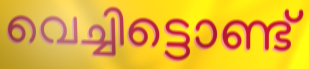
വെച്ചിട്ടൊണ്ട്